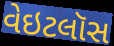
વેઇટલૉસ